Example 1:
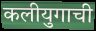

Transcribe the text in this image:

कलीयुगाची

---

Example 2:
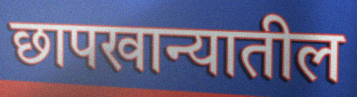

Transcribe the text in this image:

छापखान्यातील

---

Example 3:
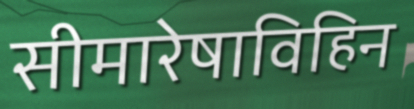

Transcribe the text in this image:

सीमारेषाविहिन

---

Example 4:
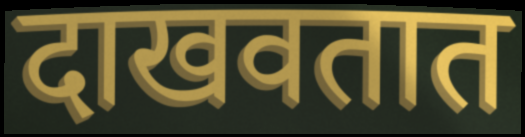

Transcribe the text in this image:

दाखवतात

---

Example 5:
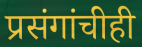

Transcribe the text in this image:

प्रसंगांचीही